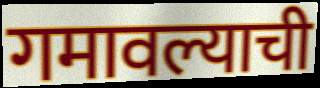
गमावल्याची